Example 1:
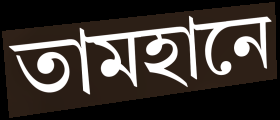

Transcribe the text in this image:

তামহানে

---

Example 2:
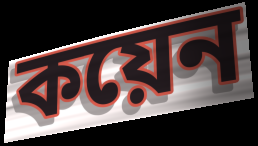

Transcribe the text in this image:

কয়েন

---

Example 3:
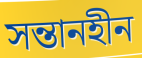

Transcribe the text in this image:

সন্তানহীন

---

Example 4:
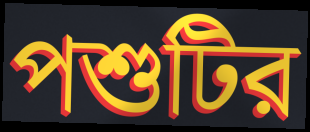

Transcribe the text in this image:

পশুটির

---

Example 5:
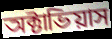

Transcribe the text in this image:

অক্টাভিয়াস